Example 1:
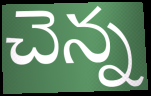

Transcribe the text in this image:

చెన్న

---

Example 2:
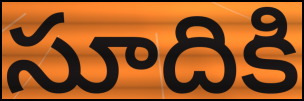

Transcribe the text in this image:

సూదికి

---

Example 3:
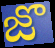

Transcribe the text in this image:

జొ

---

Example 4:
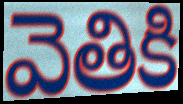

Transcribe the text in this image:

వెతికి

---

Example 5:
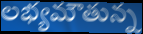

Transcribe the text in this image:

లభ్యమౌతున్న